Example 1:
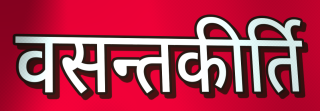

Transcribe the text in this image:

वसन्तकीर्ति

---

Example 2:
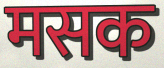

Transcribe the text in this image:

मसक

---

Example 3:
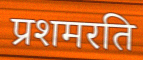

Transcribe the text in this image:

प्रशमरति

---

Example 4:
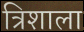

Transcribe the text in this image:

त्रिशाला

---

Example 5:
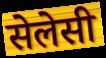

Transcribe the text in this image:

सेलेसी